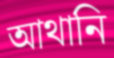
আথানি